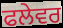
ਫਲੇਵਰ